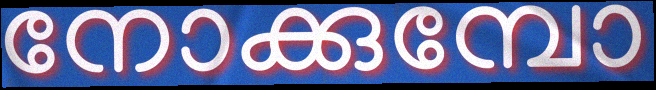
നോക്കുമ്പോ